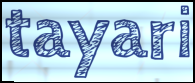
tayari